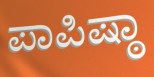
ಪಾಪಿಷ್ಠಾ